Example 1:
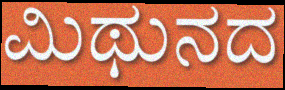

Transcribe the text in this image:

ಮಿಥುನದ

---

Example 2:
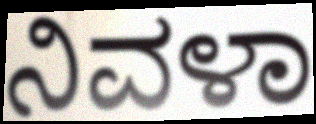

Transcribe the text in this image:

ನಿವಳಾ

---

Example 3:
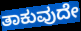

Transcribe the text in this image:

ತಾಕುವುದೇ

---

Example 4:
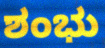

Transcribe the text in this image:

ಶಂಭು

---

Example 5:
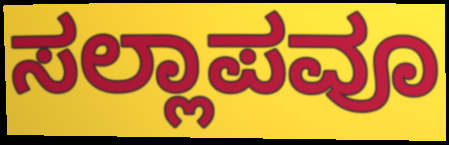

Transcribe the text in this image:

ಸಲ್ಲಾಪವೂ